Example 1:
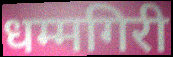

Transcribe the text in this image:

धम्मगिरी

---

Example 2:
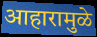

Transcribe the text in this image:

आहारामुळे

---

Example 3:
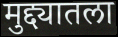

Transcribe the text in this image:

मुद्द्यातला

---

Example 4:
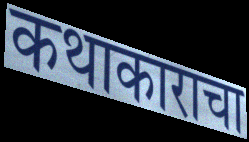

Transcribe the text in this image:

कथाकाराचा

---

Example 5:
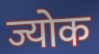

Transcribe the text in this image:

ज्योक